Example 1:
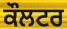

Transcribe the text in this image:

ਕੌਲਟਰ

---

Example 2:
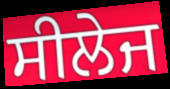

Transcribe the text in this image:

ਸੀਲੇਜ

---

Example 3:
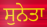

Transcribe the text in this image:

ਸੁਨੇਤਾ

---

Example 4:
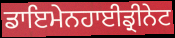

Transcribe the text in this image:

ਡਾਇਮੇਨਹਾਈਡ੍ਰੀਨੇਟ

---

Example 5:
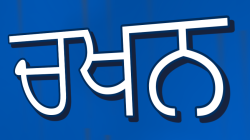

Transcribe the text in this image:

ਚਖਨ